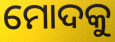
ମୋଦକୁ